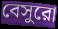
বেসুরো